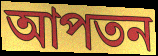
আপতন